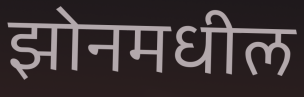
झोनमधील